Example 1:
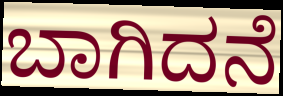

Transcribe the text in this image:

ಬಾಗಿದನೆ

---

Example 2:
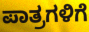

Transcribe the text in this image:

ಪಾತ್ರಗಳಿಗೆ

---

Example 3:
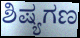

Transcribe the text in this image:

ಶಿಷ್ಯಗಣ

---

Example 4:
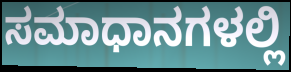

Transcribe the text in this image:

ಸಮಾಧಾನಗಳಲ್ಲಿ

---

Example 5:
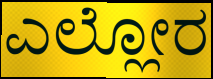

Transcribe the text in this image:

ಎಲ್ಲೋರ